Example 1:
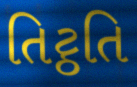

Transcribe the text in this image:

તિટ્ઠતિ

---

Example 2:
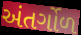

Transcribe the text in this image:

અંતર્ગોળ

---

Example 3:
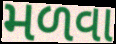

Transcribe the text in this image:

મળવા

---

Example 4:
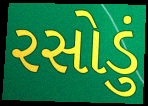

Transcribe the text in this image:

રસોડું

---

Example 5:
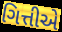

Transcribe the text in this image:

ગિત્તીએ